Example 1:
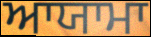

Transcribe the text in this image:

ਆਯਾਮਾ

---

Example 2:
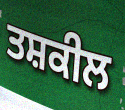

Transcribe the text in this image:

ਤਸ਼ਕੀਲ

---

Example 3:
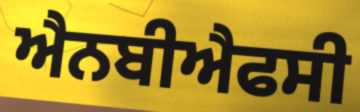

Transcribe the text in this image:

ਐਨਬੀਐਫਸੀ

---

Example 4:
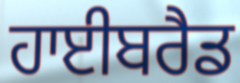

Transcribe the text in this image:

ਹਾਈਬਰੈਡ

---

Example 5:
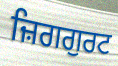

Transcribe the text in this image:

ਜ਼ਿਗਗੁਰਟ